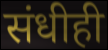
संधीही